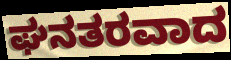
ಘನತರವಾದ